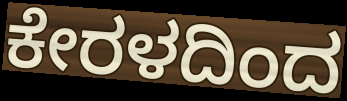
ಕೇರಳದಿಂದ